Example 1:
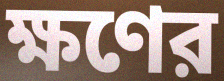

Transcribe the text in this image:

ক্ষণের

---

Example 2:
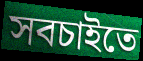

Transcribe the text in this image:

সবচাইতে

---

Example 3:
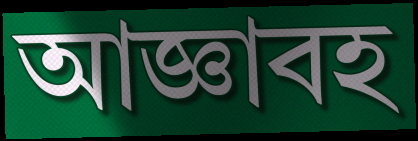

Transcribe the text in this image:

আজ্ঞাবহ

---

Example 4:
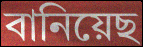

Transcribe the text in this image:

বানিয়েছ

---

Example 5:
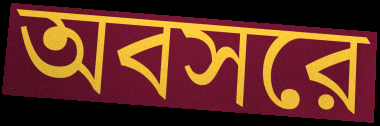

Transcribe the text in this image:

অবসরে